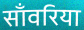
साँवरिया